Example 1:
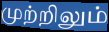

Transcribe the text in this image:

முற்றிலும்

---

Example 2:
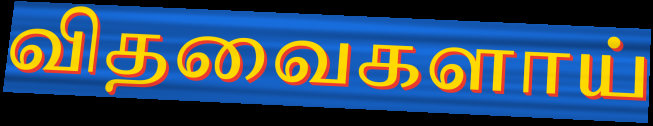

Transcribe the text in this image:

விதவைகளாய்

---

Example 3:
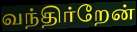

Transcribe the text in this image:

வந்திர்றேன்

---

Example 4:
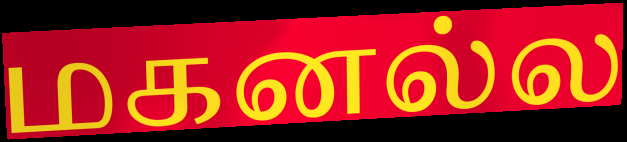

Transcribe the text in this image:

மகனல்ல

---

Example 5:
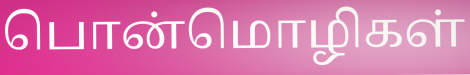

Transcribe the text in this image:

பொன்மொழிகள்